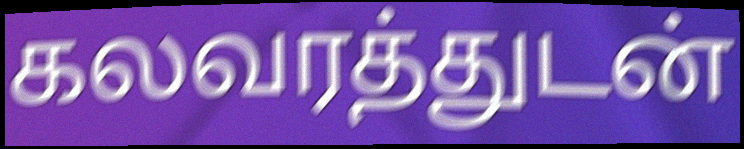
கலவரத்துடன்